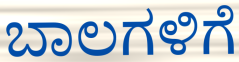
ಬಾಲಗಳಿಗೆ